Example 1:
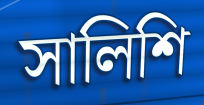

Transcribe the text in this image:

সালিশি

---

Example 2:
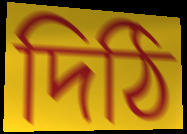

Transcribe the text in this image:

দিঠি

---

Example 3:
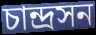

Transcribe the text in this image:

চান্দ্রসন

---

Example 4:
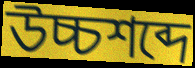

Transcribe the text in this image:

উচ্চশব্দে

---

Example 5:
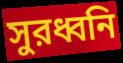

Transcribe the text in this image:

সুরধ্বনি